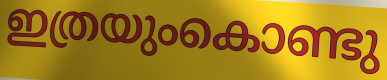
ഇത്രയുംകൊണ്ടു